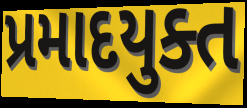
પ્રમાદયુક્ત